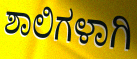
ಶಾಲಿಗಳಾಗಿ